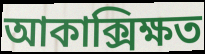
আকাক্সিক্ষত